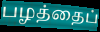
பழத்தைப்